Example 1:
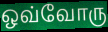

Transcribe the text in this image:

ஒவ்வோரு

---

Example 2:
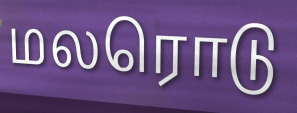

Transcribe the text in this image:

மலரொடு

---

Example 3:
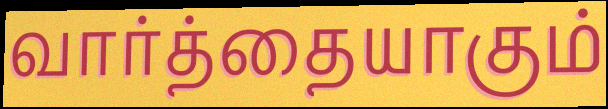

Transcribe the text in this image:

வார்த்தையாகும்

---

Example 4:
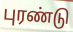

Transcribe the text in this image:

புரண்டு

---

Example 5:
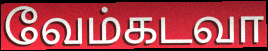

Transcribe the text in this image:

வேம்கடவா